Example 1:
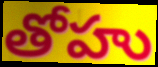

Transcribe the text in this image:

తోహు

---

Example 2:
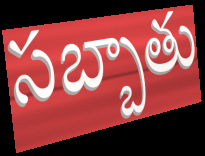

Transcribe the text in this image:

సబ్బాతు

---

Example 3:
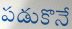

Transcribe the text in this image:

పడుకొనే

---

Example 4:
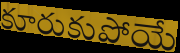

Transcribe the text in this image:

కూరుకుపోయే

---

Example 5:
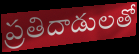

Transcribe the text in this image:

ప్రతిదాడులతో